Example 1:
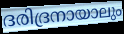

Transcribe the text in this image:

ദരിദ്രനായാലും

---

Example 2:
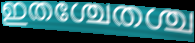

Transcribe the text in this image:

ഇതശ്ചേതശ്ച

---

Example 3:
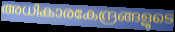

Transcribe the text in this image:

അധികാരകേന്ദ്രങ്ങളുടെ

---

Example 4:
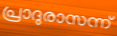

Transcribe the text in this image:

പ്രാദുരാസന്ന്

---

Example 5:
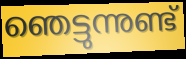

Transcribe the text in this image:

ഞെട്ടുന്നുണ്ട്